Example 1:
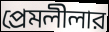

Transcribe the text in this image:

প্রেমলীলার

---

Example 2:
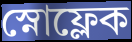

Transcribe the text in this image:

স্নোফ্লেক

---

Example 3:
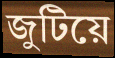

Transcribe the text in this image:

জুটিয়ে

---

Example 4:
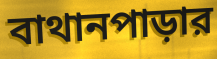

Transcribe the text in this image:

বাথানপাড়ার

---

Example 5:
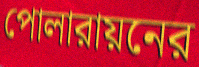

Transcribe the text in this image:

পোলারায়নের